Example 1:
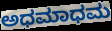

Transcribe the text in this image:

ಅಧಮಾಧಮ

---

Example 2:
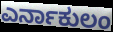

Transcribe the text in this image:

ಎರ್ನಾಕುಲಂ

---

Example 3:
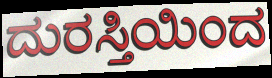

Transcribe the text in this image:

ದುರಸ್ತಿಯಿಂದ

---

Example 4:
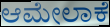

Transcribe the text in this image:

ಆಮೇಲಾಕೆ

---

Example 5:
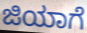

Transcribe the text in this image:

ಜಿಯಾಗೆ